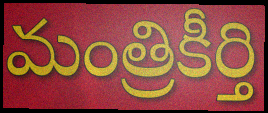
మంత్రికీర్తి